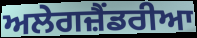
ਅਲੇਗਜ਼ੈਂਡਰੀਆ